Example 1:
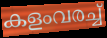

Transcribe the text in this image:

കളംവരച്ച്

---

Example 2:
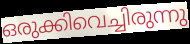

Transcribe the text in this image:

ഒരുക്കിവെച്ചിരുന്നു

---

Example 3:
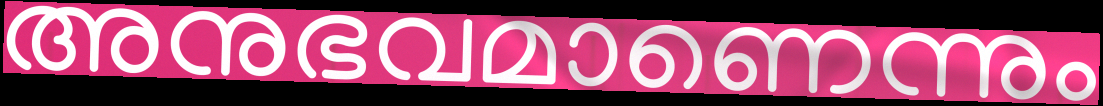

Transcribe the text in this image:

അനുഭവമാണെന്നും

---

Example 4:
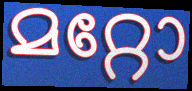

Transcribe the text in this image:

മറ്റോ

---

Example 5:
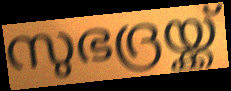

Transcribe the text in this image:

സുഭദ്രയ്ക്ക്